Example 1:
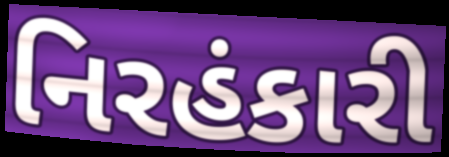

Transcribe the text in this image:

નિરહંકારી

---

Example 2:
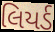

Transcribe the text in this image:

લિયર્ડ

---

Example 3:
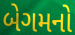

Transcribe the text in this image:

બેગમનો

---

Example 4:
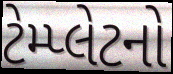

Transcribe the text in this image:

ટેમ્પ્લેટનો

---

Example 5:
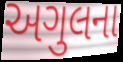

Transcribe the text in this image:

અગુલના